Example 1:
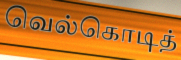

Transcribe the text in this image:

வெல்கொடித்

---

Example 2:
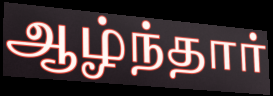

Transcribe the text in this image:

ஆழ்ந்தார்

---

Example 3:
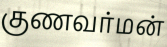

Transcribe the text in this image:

குணவர்மன்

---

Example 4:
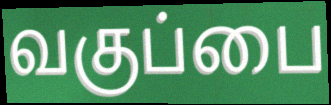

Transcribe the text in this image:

வகுப்பை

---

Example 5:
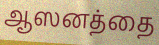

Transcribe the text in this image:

ஆஸனத்தை